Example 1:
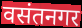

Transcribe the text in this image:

वसंतनगर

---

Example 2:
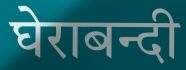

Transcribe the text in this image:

घेराबन्दी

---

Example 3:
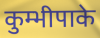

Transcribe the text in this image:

कुम्भीपाके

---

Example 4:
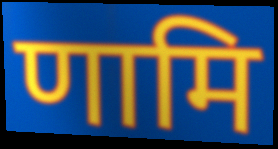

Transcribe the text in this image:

णामि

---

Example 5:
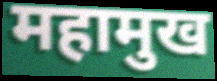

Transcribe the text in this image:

महामुख